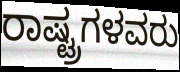
ರಾಷ್ಟ್ರಗಳವರು